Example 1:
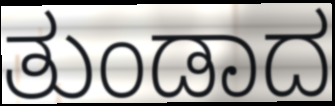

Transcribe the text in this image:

ತುಂಡಾದ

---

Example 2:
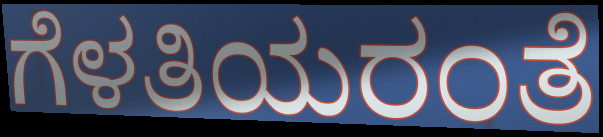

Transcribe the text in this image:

ಗೆಳತಿಯರಂತೆ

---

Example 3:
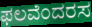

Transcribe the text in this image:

ಫಲವೆಂದರಸ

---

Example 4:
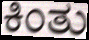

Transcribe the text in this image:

ಕಿಂತು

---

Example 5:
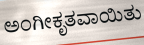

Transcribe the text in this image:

ಅಂಗೀಕೃತವಾಯಿತು